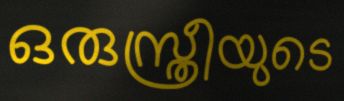
ഒരുസ്ത്രീയുടെ